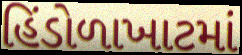
હિંડોળાખાટમાં